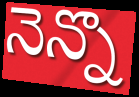
నెన్నొ